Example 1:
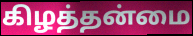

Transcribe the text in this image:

கிழத்தன்மை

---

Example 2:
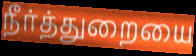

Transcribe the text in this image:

நீர்த்துறையை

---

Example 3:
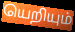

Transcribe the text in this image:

யெறியும்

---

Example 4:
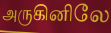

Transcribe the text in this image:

அருகினிலே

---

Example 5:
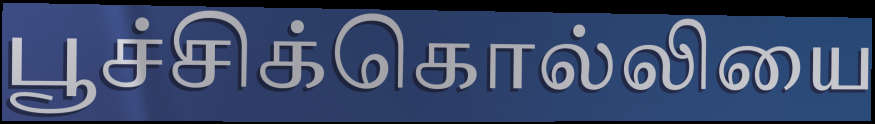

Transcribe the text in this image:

பூச்சிக்கொல்லியை